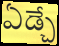
ఏడ్చే